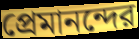
প্রেমানন্দের